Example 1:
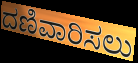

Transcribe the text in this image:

ದಣಿವಾರಿಸಲು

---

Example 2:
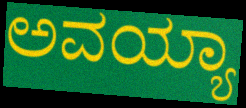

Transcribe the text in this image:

ಅವಯ್ಯಾ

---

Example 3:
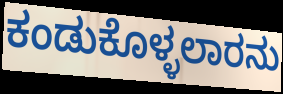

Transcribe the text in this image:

ಕಂಡುಕೊಳ್ಳಲಾರನು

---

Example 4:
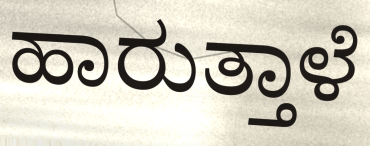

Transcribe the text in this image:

ಹಾರುತ್ತಾಳೆ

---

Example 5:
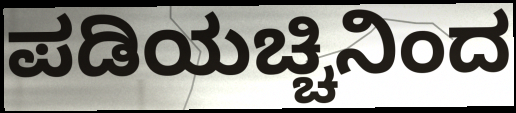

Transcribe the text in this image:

ಪಡಿಯಚ್ಚಿನಿಂದ